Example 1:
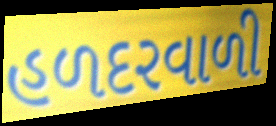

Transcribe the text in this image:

હળદરવાળી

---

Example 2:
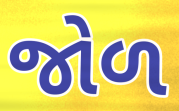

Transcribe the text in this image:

જોળ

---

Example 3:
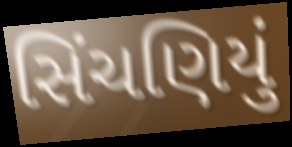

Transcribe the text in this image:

સિંચણિયું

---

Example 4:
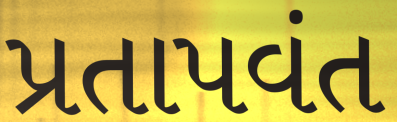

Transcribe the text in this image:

પ્રતાપવંત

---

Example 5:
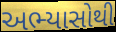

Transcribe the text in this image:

અભ્યાસોથી